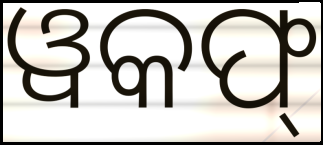
ୱକଫ୍